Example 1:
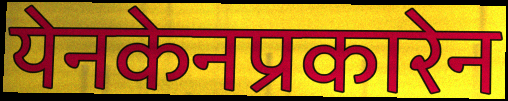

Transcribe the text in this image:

येनकेनप्रकारेन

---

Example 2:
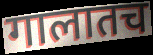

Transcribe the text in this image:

गालातच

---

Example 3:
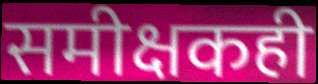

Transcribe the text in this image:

समीक्षकही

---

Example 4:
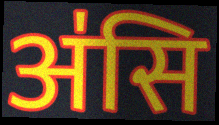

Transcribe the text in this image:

अ॑सि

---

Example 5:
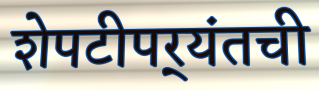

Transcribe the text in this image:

शेपटीपर्यंतची